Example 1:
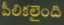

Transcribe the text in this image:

పీలికలైంది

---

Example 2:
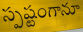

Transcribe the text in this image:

స్పష్టంగానూ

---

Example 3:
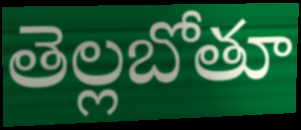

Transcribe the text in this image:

తెల్లబోతూ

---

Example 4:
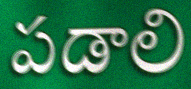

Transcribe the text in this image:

పడాలి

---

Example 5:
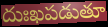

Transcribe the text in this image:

దుఃఖపడుతూ